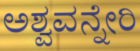
ಅಶ್ವವನ್ನೇರಿ